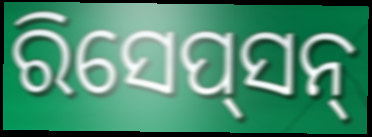
ରିସେପ୍‍ସନ୍